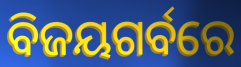
ବିଜୟଗର୍ବରେ